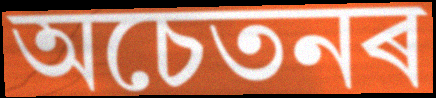
অচেতনৰ